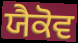
ਯੈਕੋਵ